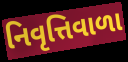
નિવૃત્તિવાળા